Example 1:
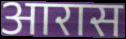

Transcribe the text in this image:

आरास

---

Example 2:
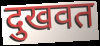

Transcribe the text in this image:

दुखवत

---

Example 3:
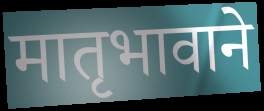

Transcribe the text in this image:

मातृभावाने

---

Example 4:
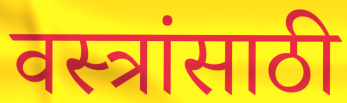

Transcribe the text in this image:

वस्त्रांसाठी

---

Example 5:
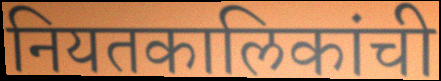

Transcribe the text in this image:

नियतकालिकांची